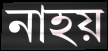
নাহয়